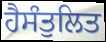
ਹੈਸੰਤੁਲਿਤ